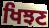
ਖਿਝਣ